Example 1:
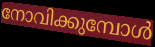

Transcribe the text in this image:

നോവിക്കുമ്പോൾ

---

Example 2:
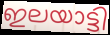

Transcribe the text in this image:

ഇലയാട്ടി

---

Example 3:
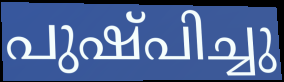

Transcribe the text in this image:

പുഷ്പിച്ചു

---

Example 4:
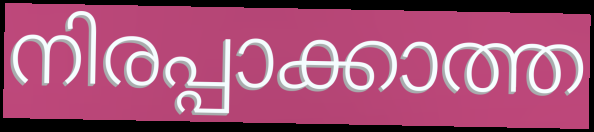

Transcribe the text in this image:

നിരപ്പാക്കാത്ത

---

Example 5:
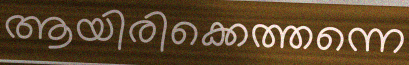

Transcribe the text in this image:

ആയിരിക്കെത്തന്നെ